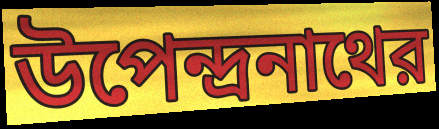
উপেন্দ্রনাথের